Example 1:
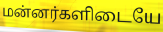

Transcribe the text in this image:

மன்னர்களிடையே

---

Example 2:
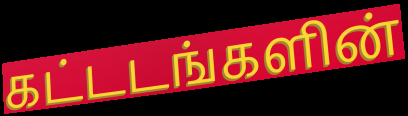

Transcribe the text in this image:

கட்டடங்களின்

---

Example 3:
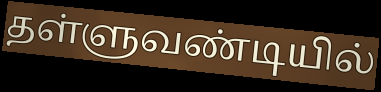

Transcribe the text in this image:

தள்ளுவண்டியில்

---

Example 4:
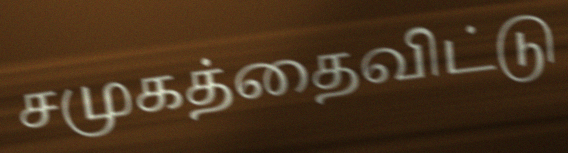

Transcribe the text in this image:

சமுகத்தைவிட்டு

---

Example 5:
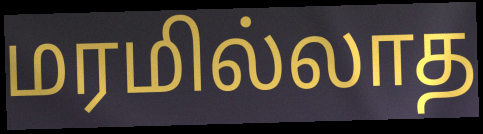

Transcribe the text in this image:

மரமில்லாத